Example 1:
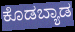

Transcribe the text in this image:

ಕೊಡಬ್ಯಾಡ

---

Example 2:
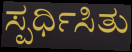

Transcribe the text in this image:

ಸ್ಪರ್ಧಿಸಿತು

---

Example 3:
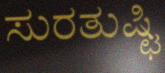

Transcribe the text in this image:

ಸುರತುಷ್ಟಿ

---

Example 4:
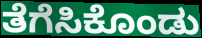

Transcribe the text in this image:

ತೆಗೆಸಿಕೊಂಡು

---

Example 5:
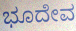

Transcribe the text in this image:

ಭೂದೇವ